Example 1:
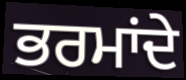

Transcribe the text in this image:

ਭਰਮਾਂਦੇ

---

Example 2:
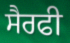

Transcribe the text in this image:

ਸੈਰਫੀ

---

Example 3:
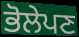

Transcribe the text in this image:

ਭੋਲੇਪਣ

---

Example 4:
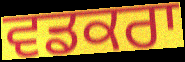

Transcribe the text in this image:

ਵਡਕਰਾ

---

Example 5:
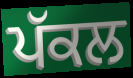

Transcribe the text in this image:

ਪੱਕਲ